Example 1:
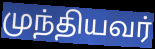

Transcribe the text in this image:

முந்தியவர்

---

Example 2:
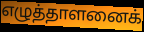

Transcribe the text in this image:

எழுத்தாளனைக்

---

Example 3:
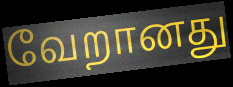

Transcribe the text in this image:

வேறானது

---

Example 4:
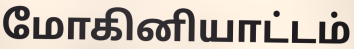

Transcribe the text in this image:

மோகினியாட்டம்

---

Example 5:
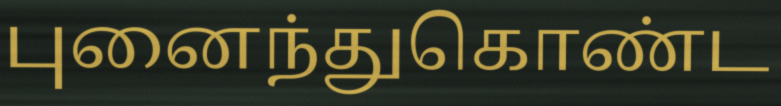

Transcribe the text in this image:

புனைந்துகொண்ட